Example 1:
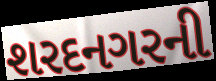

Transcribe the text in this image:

શરદનગરની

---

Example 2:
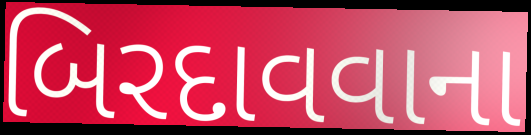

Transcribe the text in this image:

બિરદાવવાના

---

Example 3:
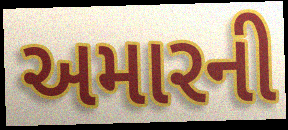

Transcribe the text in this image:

અમારની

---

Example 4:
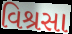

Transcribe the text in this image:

વિશ્રસા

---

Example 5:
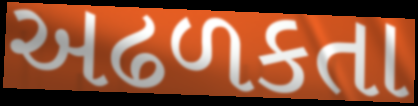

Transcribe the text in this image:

અઢળકતા